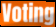
Voting